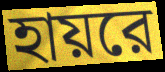
হায়রে